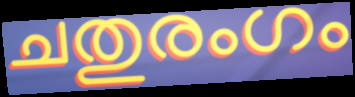
ചതുരംഗം